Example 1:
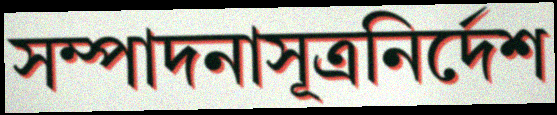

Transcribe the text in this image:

সম্পাদনাসূত্রনির্দেশ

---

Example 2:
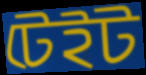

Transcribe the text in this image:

টেইট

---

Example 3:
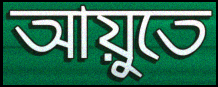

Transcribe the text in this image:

আয়ুতে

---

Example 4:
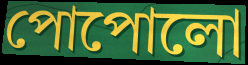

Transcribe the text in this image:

পোপোলো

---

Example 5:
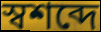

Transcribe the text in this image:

স্বশব্দে